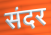
संदर